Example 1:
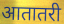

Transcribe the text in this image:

आतातरी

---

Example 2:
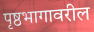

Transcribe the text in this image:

पृष्ठभागावरील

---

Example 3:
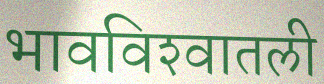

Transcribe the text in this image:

भावविश्वातली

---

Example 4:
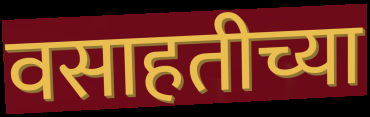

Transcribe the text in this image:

वसाहतीच्या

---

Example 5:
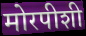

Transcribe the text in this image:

मोरपीशी